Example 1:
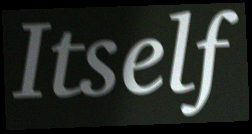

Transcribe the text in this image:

Itself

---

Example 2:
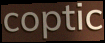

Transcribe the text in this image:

coptic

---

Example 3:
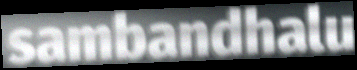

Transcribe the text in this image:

sambandhalu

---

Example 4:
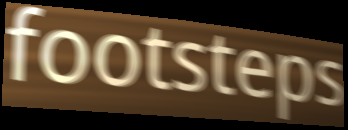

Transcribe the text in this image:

footsteps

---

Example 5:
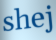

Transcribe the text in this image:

shej